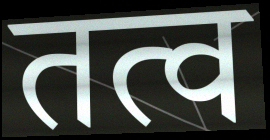
तत्व